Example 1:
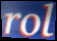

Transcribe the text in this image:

rol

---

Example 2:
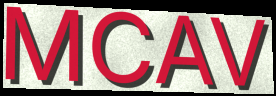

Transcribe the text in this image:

MCAV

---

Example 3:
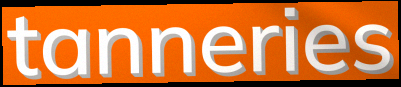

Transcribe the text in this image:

tanneries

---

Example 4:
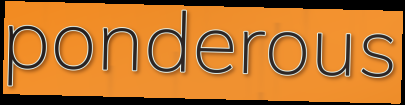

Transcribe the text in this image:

ponderous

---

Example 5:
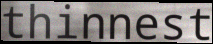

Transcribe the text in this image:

thinnest